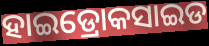
ହାଇଡ୍ରୋକସାଇଡ